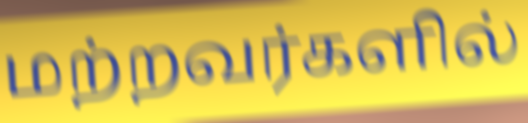
மற்றவர்களில்